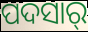
ପଦସାର୍